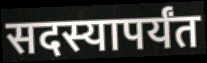
सदस्यापर्यंत